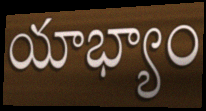
యాభ్యాం